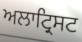
ਅਲਾਟ੍ਰਿਸਟ